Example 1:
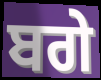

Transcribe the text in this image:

ਬਗੇ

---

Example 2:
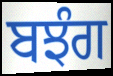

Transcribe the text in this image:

ਬਝੰਗ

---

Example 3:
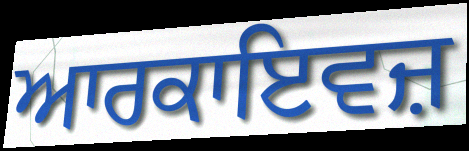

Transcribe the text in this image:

ਆਰਕਾਇਵਜ਼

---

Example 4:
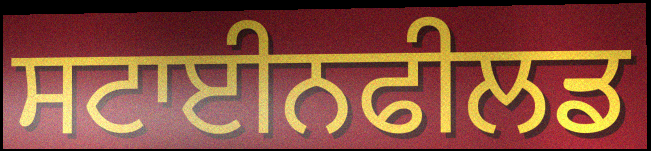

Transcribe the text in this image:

ਸਟਾਈਨਫੀਲਡ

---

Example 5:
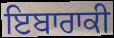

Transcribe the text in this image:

ਇਬਾਰਾਕੀ